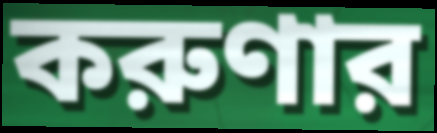
করুণার